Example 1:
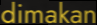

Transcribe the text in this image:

dimakan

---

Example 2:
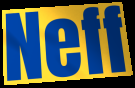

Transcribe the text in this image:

Neff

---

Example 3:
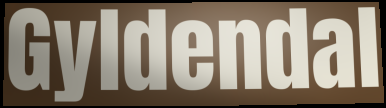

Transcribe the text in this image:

Gyldendal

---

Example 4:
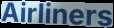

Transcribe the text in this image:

Airliners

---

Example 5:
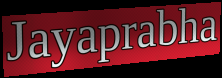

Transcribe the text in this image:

Jayaprabha